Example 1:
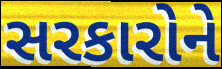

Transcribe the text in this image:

સરકારોને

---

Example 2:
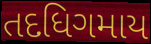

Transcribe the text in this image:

તદધિગમાય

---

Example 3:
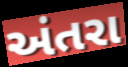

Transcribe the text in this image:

અંતરા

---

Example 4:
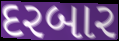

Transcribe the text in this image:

દરબાર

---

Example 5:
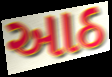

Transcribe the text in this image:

આઠ